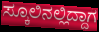
ಸ್ಕೂಲಿನಲ್ಲಿದ್ದಾಗ